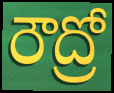
రౌద్రో